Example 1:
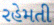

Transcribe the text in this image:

રહેમતી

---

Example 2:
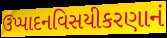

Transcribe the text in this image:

ઉપ્પાદનવિસયીકરણાનં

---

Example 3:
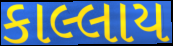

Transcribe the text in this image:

કાલ્લાય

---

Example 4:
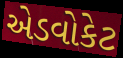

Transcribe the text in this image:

એડવોકેટ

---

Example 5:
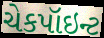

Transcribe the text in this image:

ચેકપૉઇન્ટ